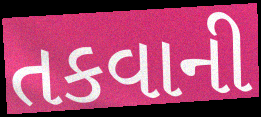
તકવાની